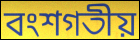
বংশগতীয়